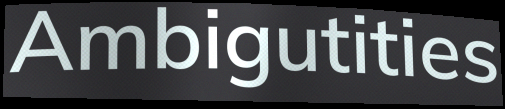
Ambigutities